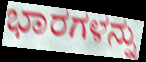
ಭಾರಗಳನ್ನು